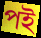
পই